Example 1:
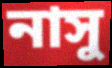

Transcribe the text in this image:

নাসু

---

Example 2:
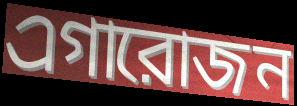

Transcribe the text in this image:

এগারোজন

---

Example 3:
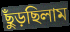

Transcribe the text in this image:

ছুঁড়ছিলাম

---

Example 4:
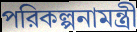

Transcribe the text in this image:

পরিকল্পনামন্ত্রী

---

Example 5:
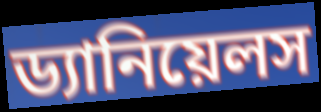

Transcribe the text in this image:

ড্যানিয়েলস